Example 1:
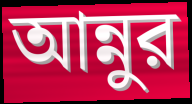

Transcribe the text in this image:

আন্নুর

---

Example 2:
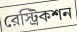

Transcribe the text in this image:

রেস্ট্রিকশন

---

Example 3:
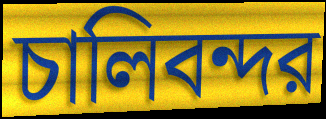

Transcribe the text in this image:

চালিবন্দর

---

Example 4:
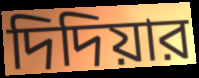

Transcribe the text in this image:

দিদিয়ার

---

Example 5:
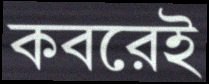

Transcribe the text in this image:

কবরেই